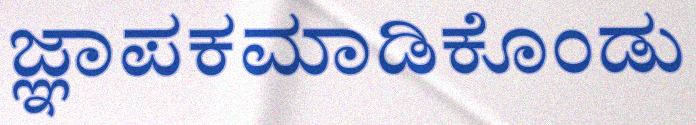
ಜ್ಞಾಪಕಮಾಡಿಕೊಂಡು